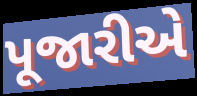
પૂજારીએ